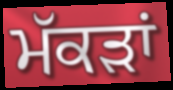
ਮੱਕੜਾਂ